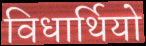
विधार्थियो